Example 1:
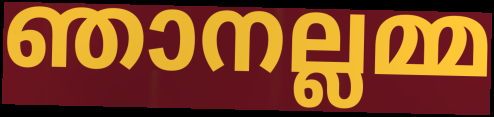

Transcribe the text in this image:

ഞാനല്ലമ്മ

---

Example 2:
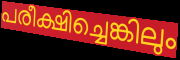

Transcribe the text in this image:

പരീക്ഷിച്ചെങ്കിലും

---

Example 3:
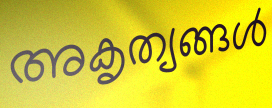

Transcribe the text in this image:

അകൃത്യങ്ങൾ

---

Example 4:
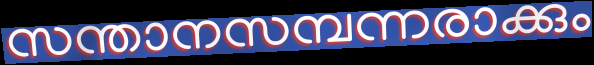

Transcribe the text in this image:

സന്താനസമ്പന്നരാക്കും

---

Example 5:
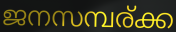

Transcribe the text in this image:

ജനസമ്പര്ക്ക